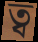
ত্ব